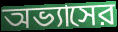
অভ্যাসের